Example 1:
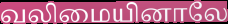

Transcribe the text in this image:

வலிமையினாலே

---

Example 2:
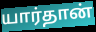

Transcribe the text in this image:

யார்தான்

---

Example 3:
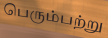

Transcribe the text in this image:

பெரும்பற்று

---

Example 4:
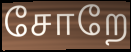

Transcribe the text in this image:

சோறே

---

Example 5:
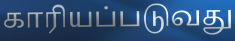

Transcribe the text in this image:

காரியப்படுவது